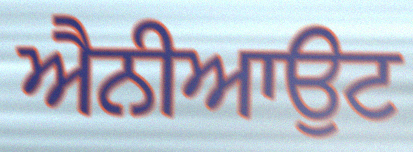
ਐਨੀਆਉਟ